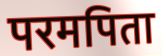
परमपिता